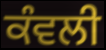
ਕੰਵਲੀ